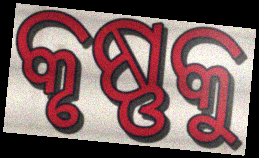
କୃଷ୍ଣକୁ